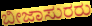
ಬೀಜಾಸುರರು